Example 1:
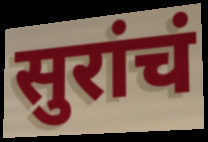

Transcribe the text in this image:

सुरांचं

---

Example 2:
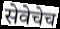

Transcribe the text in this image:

सेवेचेच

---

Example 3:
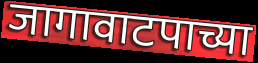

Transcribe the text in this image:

जागावाटपाच्या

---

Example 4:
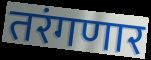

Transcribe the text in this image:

तरंगणार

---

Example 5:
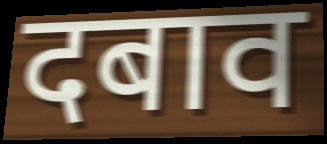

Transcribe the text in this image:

दबाव